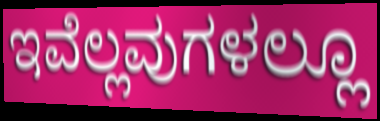
ಇವೆಲ್ಲವುಗಳಲ್ಲೂ